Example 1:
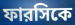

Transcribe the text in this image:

ফারসিকে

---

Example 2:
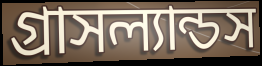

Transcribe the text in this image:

গ্রাসল্যান্ডস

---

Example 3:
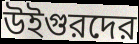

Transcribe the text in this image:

উইগুরদের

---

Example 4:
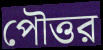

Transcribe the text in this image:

পৌত্তর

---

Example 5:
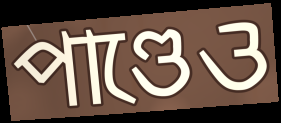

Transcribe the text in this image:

পাণ্ডেও